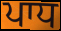
ਪਾਧ